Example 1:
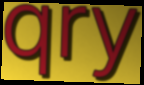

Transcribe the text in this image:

qry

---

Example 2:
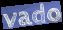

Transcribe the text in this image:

vado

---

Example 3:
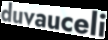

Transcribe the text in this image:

duvauceli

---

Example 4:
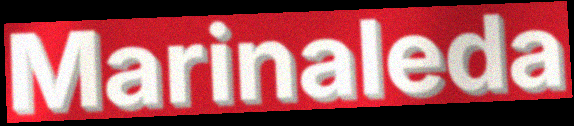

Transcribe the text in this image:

Marinaleda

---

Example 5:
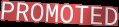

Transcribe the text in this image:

PROMOTED